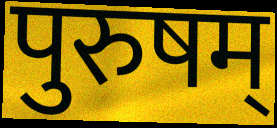
पुरुषम्